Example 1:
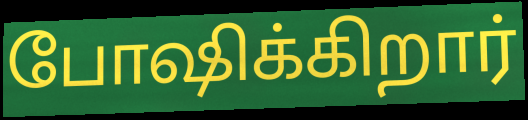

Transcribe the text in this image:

போஷிக்கிறார்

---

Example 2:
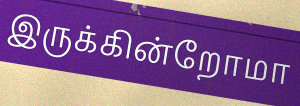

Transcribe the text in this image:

இருக்கின்றோமா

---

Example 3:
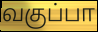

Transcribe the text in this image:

வகுப்பா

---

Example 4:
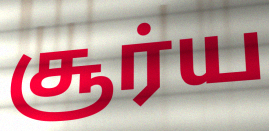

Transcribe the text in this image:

சூர்ய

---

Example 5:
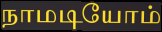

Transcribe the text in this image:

நாமடியோம்